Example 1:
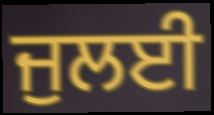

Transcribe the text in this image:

ਜੁਲਈ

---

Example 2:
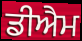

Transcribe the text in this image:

ਡੀਐਮ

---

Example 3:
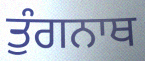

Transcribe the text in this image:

ਤੁੰਗਨਾਥ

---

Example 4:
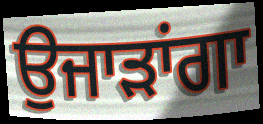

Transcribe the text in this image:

ਉਜਾੜਾਂਗਾ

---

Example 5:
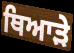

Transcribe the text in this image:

ਥਿਆੜੇ